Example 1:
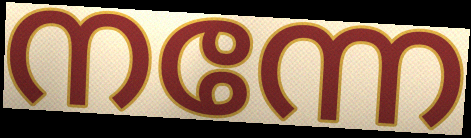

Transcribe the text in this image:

നന്നേ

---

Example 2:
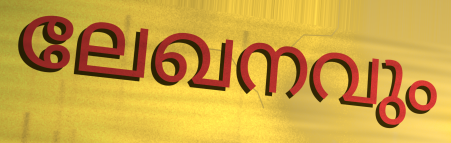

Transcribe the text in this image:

ലേഖനവും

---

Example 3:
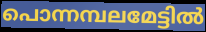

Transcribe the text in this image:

പൊന്നമ്പലമേട്ടിൽ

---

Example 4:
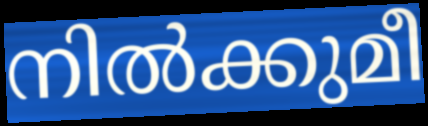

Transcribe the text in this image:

നിൽക്കുമീ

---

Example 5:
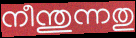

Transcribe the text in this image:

നീന്തുന്നതു